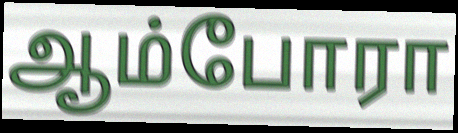
ஆம்போரா